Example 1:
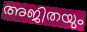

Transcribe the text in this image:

അജിതയും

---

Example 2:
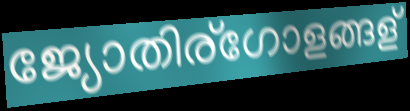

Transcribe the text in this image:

ജ്യോതിര്ഗോളങ്ങള്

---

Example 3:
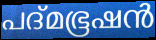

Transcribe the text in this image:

പദ്മഭൂഷൻ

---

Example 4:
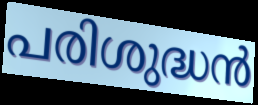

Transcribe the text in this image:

പരിശുദ്ധൻ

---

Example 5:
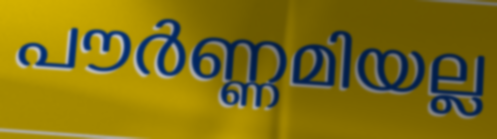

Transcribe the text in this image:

പൗർണ്ണമിയല്ല